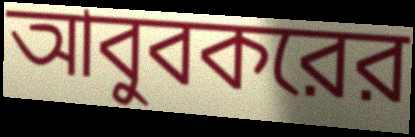
আবুবকরের